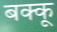
बक्कू